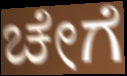
ಚೇಗೆ